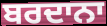
ਬਰਦਾਨਾ